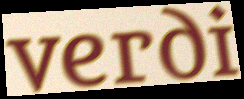
verdi